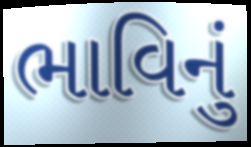
ભાવિનું